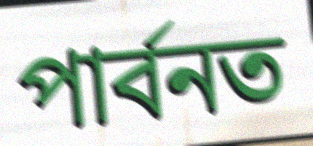
পাৰ্বনত